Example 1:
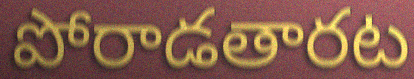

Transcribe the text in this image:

పోరాడతారట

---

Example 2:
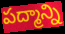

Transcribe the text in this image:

పద్మాన్ని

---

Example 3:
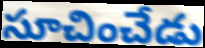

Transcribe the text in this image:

సూచించేడు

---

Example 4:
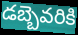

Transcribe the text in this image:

డబ్బెవరికి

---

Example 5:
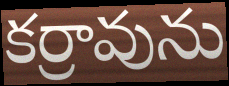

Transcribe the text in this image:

కర్రావును